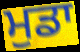
ਮੁਡਾ